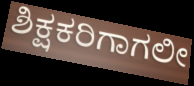
ಶಿಕ್ಷಕರಿಗಾಗಲೀ